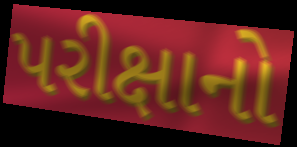
પરીક્ષાનો